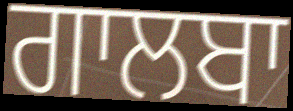
ਗਾਲਬਾ